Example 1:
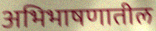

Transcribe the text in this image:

अभिभाषणातील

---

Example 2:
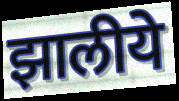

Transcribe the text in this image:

झालीये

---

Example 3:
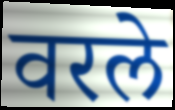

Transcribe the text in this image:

वरले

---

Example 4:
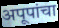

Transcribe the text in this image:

अपूपांचा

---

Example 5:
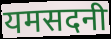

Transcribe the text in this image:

यमसदनी